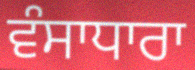
ਵੰਸਾਧਾਰਾ